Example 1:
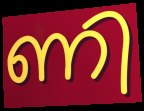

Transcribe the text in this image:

ണി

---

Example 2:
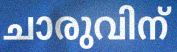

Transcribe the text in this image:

ചാരുവിന്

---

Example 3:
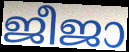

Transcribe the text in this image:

ജീജാ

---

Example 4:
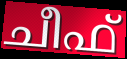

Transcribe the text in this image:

ചീഫ്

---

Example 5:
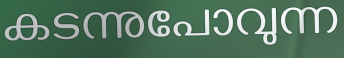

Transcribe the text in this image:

കടന്നുപോവുന്ന